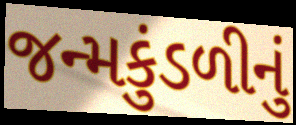
જન્મકુંડળીનું